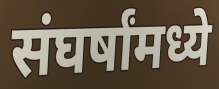
संघर्षांमध्ये